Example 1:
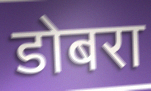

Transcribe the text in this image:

डोबरा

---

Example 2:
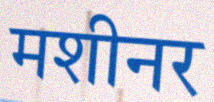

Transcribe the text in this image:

मशीनर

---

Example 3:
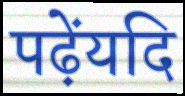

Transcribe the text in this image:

पढ़ेंयदि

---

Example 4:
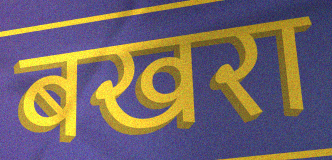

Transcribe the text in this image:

बखरा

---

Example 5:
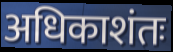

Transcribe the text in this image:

अधिकाशंतः